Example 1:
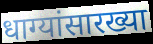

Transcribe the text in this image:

धाग्यांसारख्या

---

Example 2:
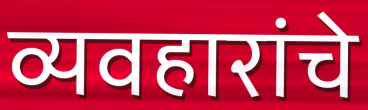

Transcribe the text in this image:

व्यवहारांचे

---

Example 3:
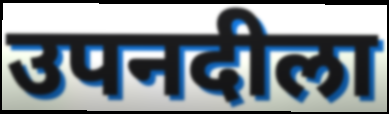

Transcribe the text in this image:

उपनदीला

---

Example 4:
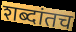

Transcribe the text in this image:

शब्दांतच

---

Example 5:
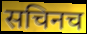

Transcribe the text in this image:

सचिनच